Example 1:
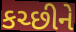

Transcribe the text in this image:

કચ્છીને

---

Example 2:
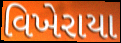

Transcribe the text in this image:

વિખેરાયા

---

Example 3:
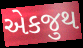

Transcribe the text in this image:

એકજુથ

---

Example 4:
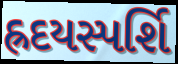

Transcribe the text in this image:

હ્રદયસ્પર્શિ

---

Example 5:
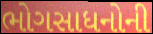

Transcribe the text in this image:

ભોગસાધનોની